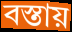
বস্তায়